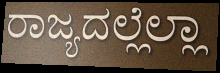
ರಾಜ್ಯದಲ್ಲೆಲ್ಲಾ